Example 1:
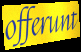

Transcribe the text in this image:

offerunt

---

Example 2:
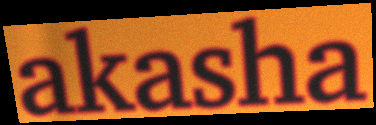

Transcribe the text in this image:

akasha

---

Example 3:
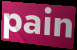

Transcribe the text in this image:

pain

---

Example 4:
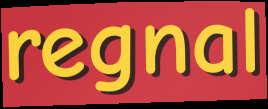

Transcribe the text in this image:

regnal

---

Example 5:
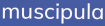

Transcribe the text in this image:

muscipula